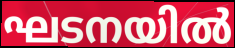
ഘടനയിൽ